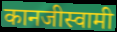
कानजीस्वामी